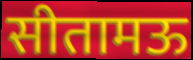
सीतामऊ